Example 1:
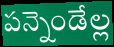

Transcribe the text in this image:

పన్నెండేల్ల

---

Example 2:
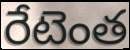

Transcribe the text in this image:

రేటెంత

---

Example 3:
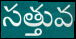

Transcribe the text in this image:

సత్తువ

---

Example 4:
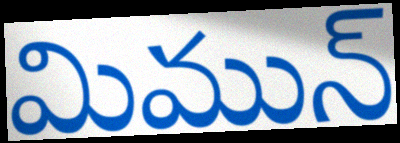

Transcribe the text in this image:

మిమున్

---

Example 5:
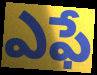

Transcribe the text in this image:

ఎఫే